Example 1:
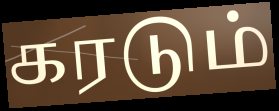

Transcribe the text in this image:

கரடும்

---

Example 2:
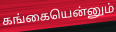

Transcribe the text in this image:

கங்கையென்னும்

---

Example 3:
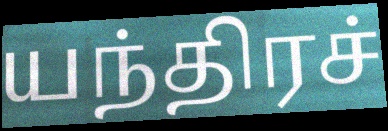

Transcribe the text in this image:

யந்திரச்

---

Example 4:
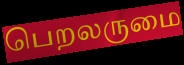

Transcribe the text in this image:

பெறலருமை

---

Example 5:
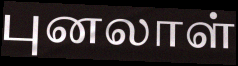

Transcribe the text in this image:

புனலாள்